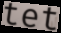
tet